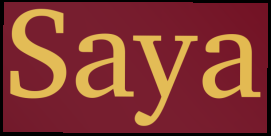
Saya